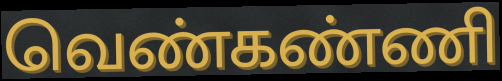
வெண்கண்ணி